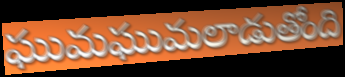
ఘుమఘుమలాడుతోంది